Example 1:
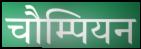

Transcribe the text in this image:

चौम्पियन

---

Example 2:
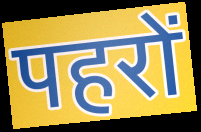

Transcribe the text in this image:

पहरों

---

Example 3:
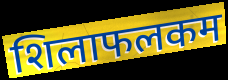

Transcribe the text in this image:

शिलाफलकम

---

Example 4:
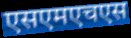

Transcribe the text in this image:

एसएमएचएस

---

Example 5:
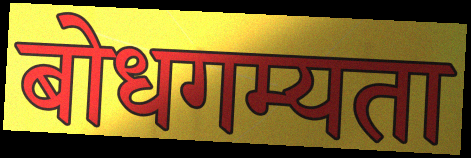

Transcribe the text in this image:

बोधगम्यता